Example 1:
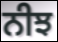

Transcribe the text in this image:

ਨੀਝ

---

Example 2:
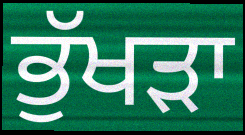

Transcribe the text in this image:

ਭੁੱਖੜਾ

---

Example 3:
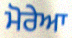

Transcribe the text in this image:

ਮੋਰੇਆ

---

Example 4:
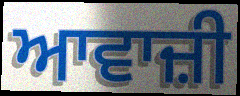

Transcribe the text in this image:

ਆਵਾਜ਼ੀ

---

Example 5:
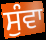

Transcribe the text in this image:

ਸੁੰਵਾ